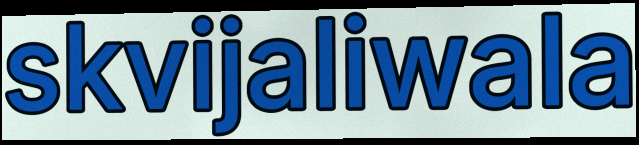
skvijaliwala